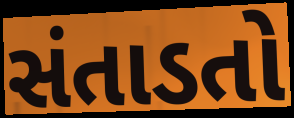
સંતાડતો